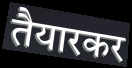
तैयारकर